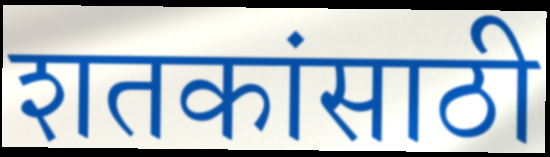
शतकांसाठी